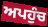
ਅਪਹੁੰਚ